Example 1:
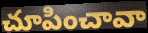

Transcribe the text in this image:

చూపించావా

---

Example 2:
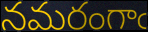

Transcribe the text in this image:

నమరంగాఁ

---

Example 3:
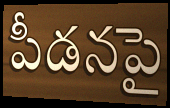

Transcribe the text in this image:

పీడనపై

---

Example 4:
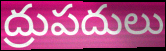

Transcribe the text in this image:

ద్రుపదులు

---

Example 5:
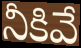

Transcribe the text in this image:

నీకివే